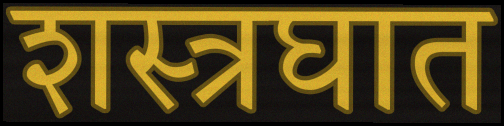
शस्त्रघात